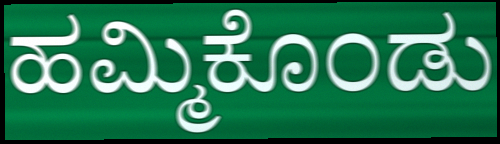
ಹಮ್ಮಿಕೊಂಡು